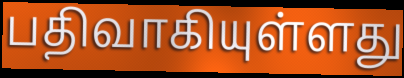
பதிவாகியுள்ளது